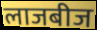
लाजबीज